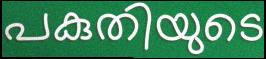
പകുതിയുടെ